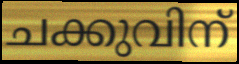
ചക്കുവിന്